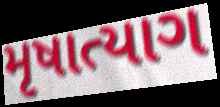
મૃષાત્યાગ